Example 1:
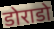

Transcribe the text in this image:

डोराडो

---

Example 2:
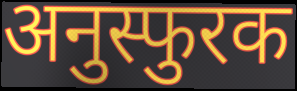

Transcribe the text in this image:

अनुस्फुरक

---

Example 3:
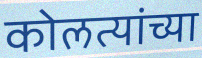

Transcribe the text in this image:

कोलत्यांच्या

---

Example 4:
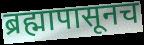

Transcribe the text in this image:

ब्रह्मापासूनच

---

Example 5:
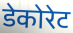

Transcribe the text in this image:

डेकोरेट